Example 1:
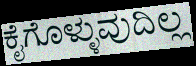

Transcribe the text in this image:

ಕೈಗೊಳ್ಳುವುದಿಲ್ಲ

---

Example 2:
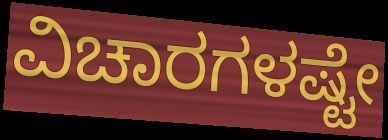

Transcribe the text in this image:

ವಿಚಾರಗಳಷ್ಟೇ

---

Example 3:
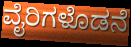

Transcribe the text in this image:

ವೈರಿಗಳೊಡನೆ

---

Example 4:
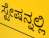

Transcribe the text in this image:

ಸ್ಟೇಷನ್ನಲ್ಲಿ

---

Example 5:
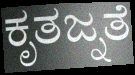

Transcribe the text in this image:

ಕೃತಜ್ನತೆ